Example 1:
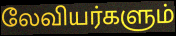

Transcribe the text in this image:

லேவியர்களும்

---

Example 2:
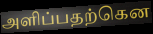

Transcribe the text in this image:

அளிப்பதற்கென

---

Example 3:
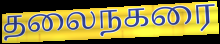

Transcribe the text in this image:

தலைநகரை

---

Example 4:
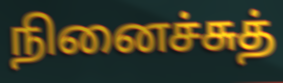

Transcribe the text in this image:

நினைச்சுத்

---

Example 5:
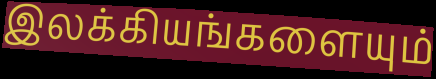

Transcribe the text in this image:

இலக்கியங்களையும்